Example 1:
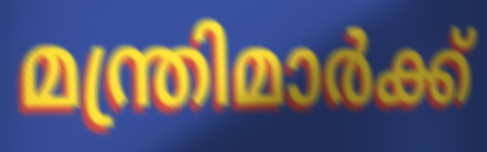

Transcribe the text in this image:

മന്ത്രിമാർക്ക്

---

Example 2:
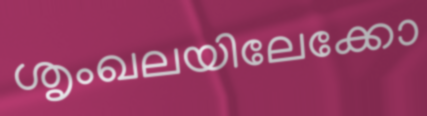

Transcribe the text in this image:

ശൃംഖലയിലേക്കോ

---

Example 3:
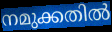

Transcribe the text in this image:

നമുക്കതിൽ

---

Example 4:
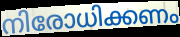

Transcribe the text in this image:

നിരോധിക്കണം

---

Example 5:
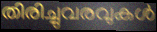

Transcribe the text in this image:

തിരിച്ചുവരവുകൾ